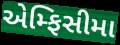
એમ્ફિસીમા